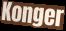
Konger